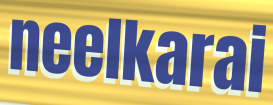
neelkarai